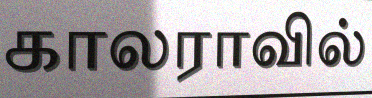
காலராவில்